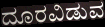
ದೂರವಿಡುವ